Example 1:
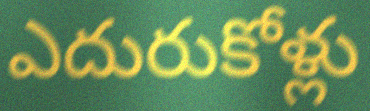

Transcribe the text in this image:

ఎదురుకోళ్లు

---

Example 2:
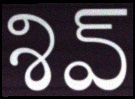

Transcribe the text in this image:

శివ్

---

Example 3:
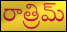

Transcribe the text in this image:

రాత్రిమ్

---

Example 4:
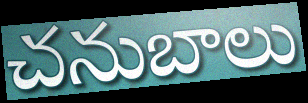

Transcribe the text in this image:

చనుబాలు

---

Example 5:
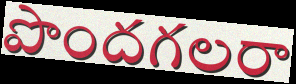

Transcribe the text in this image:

పొందగలరా